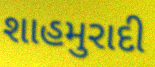
શાહમુરાદી